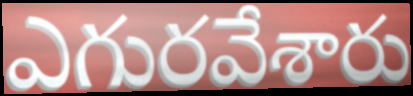
ఎగురవేశారు